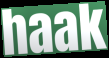
haak